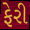
ફેરી